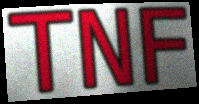
TNF